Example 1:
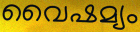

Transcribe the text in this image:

വൈഷമ്യം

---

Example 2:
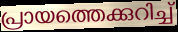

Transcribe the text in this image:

പ്രായത്തെക്കുറിച്ച്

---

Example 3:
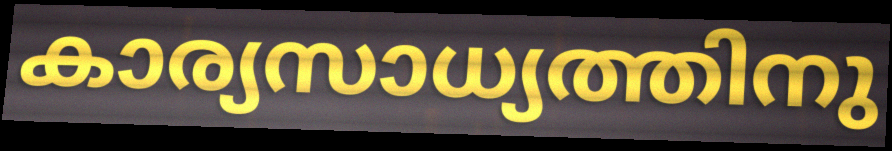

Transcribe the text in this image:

കാര്യസാധ്യത്തിനു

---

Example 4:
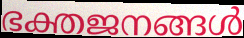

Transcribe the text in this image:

ഭക്തജനങ്ങൾ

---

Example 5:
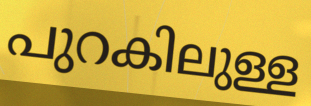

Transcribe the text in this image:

പുറകിലുള്ള